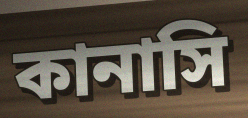
কানাসি